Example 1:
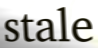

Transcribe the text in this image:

stale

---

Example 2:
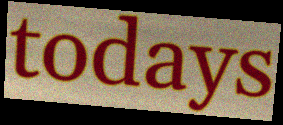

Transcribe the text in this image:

todays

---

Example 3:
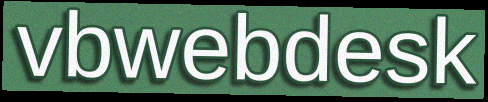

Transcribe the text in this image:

vbwebdesk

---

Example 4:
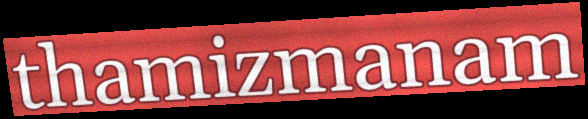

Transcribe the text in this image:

thamizmanam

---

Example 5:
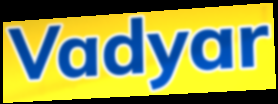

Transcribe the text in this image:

Vadyar